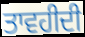
ਤਾਵਹੀਦੀ